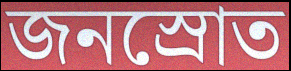
জনস্রোত